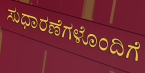
ಸುಧಾರಣೆಗಳೊಂದಿಗೆ